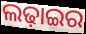
ଲଢ଼ାଇର